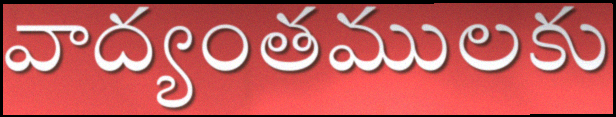
వాద్యంతములకు